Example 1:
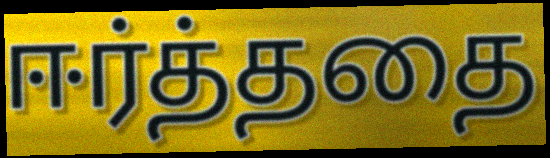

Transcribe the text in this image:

ஈர்த்ததை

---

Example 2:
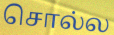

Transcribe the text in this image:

சொல்ல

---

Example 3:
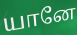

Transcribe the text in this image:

யானே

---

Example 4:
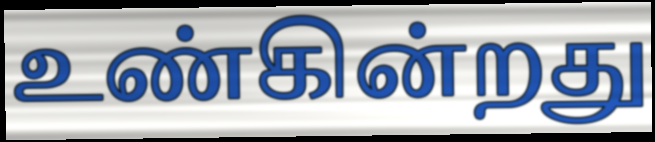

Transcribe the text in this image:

உண்கின்றது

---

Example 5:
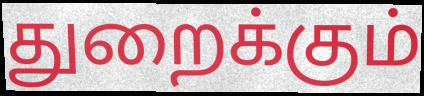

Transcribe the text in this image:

துறைக்கும்